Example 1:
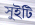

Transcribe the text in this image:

সুইটি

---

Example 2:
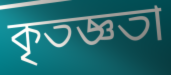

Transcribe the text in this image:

কৃতজ্ঞতা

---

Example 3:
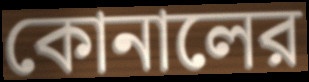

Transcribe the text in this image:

কোনালের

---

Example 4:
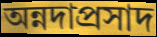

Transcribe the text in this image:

অন্নদাপ্রসাদ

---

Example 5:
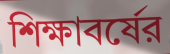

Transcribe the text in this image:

শিক্ষাবর্ষের